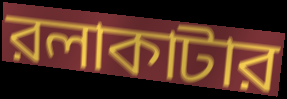
রলাকাটার